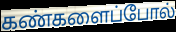
கண்களைப்போல்